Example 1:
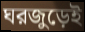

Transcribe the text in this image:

ঘরজুড়েই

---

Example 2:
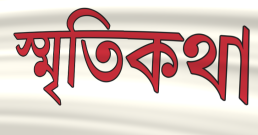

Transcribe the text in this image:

স্মৃতিকথা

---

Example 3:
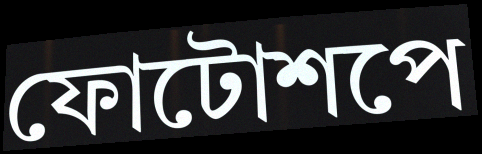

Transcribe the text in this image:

ফোটোশপে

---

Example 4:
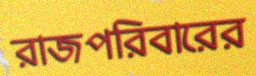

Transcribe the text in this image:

রাজপরিবারের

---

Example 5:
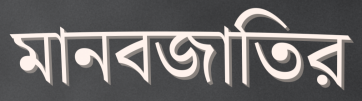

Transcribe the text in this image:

মানবজাতির